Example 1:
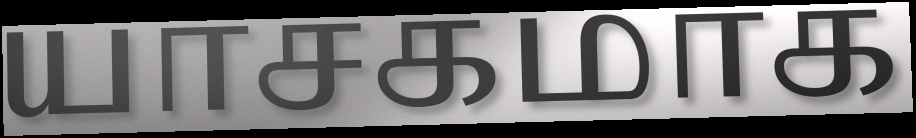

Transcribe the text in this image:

யாசகமாக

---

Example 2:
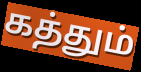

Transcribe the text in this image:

கத்தும்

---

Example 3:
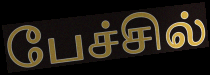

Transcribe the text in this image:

பேச்சில்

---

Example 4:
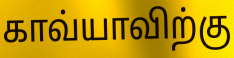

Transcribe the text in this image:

காவ்யாவிற்கு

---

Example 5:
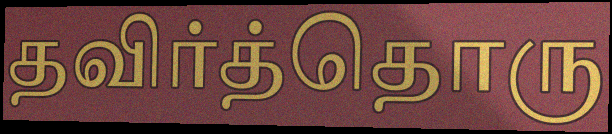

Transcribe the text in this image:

தவிர்த்தொரு